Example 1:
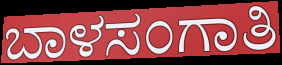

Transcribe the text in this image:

ಬಾಳಸಂಗಾತಿ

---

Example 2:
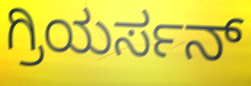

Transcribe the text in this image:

ಗ್ರಿಯರ್ಸನ್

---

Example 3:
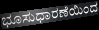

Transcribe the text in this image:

ಭೂಸುಧಾರಣೆಯಿಂದ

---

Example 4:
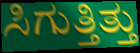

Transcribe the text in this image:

ಸಿಗುತ್ತಿತ್ತು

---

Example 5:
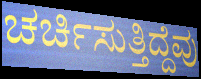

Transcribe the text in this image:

ಚರ್ಚಿಸುತ್ತಿದ್ದೆವು